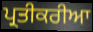
ਪ੍ਰਤੀਕਰੀਆ